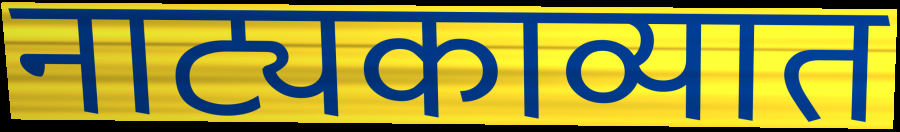
नाट्यकाव्यात